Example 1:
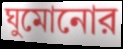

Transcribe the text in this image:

ঘুমোনোর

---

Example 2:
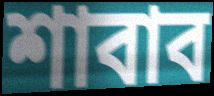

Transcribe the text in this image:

শাবাব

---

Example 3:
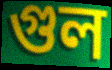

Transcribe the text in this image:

গুল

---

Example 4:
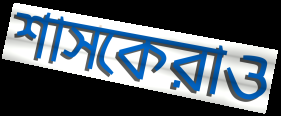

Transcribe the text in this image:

শাসকেরাও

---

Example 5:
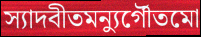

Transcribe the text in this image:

স্যাদবীতমন্যুর্গৌতমো